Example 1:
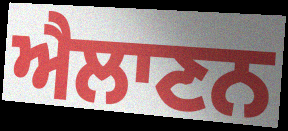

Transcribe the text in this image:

ਐਲਾਣਨ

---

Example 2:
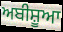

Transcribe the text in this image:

ਅਬੀਸ਼ੂਆ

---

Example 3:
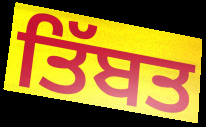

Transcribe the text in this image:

ਤਿੱਬਤ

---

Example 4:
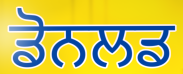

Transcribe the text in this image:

ਡੋਨਲਡ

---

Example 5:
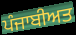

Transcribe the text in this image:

ਪੰਜਾਬੀਅਤ